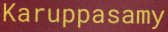
Karuppasamy